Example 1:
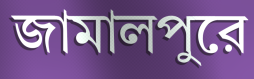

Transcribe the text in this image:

জামালপুরে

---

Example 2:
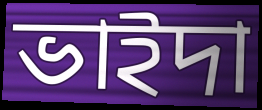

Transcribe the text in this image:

ভাইদা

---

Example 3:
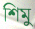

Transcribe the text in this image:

শিমু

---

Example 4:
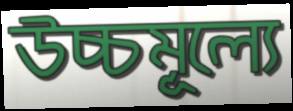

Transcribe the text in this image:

উচ্চমূল্যে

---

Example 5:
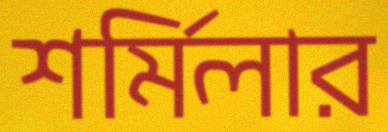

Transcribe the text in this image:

শর্মিলার